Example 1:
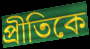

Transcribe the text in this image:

প্রীতিকে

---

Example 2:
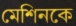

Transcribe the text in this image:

মেশিনকে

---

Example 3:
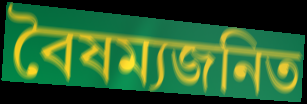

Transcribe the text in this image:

বৈষম্যজনিত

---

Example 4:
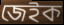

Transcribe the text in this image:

জেইক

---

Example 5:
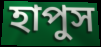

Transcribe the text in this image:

হাপুস